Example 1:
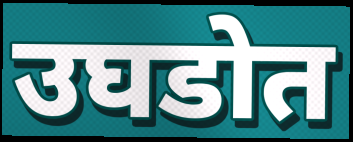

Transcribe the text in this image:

उघडोत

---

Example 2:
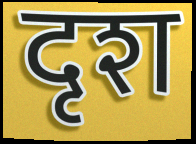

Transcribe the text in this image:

दृश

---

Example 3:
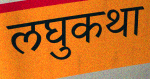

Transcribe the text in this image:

लघुकथा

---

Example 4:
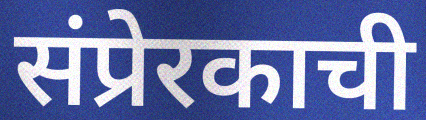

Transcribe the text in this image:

संप्रेरकाची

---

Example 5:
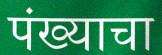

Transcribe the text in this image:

पंख्याचा